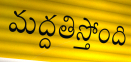
మద్దతిస్తోంది